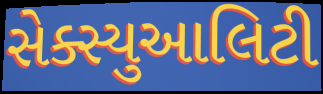
સેક્સ્યુઆલિટી